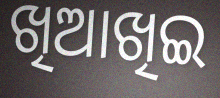
ଖିଆଖିଇ